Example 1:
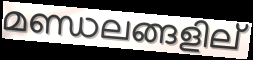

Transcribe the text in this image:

മണ്ഡലങ്ങളില്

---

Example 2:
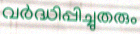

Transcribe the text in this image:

വർദ്ധിപ്പിച്ചുതരും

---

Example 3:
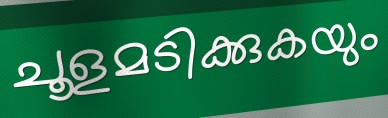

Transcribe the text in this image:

ചൂളമടിക്കുകയും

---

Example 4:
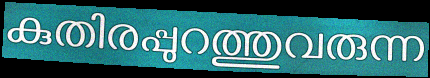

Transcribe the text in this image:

കുതിരപ്പുറത്തുവരുന്ന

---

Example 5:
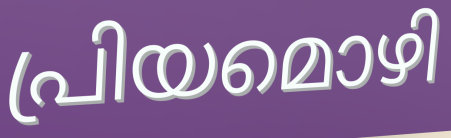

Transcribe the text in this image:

പ്രിയമൊഴി